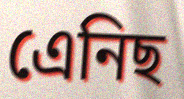
এেনিছ